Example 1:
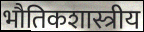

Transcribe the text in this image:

भौतिकशास्त्रीय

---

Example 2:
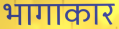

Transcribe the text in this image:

भागाकार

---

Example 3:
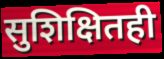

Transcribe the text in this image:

सुशिक्षितही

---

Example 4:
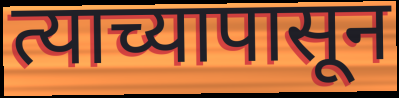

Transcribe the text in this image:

त्याच्यापासून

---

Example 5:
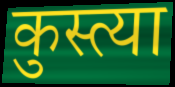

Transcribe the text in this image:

कुस्त्या